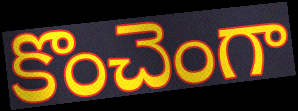
కొంచెంగా